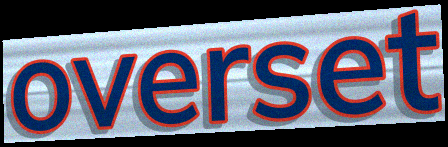
overset